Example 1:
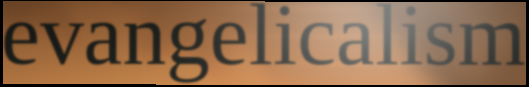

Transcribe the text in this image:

evangelicalism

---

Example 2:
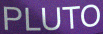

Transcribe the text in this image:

PLUTO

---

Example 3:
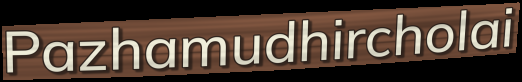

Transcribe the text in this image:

Pazhamudhircholai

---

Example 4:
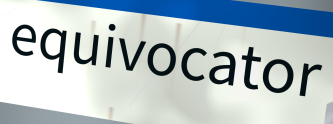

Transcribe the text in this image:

equivocator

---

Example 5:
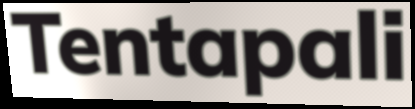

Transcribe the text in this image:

Tentapali